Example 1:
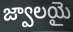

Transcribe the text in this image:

జ్వాలయై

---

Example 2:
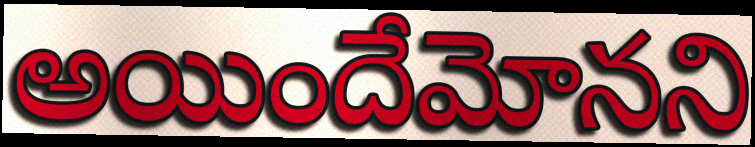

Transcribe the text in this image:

అయిందేమోనని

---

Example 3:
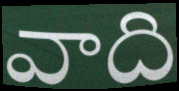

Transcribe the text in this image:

వాది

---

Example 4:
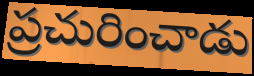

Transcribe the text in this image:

ప్రచురించాడు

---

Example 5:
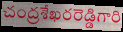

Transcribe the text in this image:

చంద్రశేఖరరెడ్డిగారి